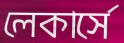
লেকার্সে